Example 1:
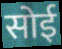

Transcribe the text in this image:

सोई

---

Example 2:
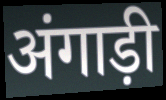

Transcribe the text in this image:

अंगाड़ी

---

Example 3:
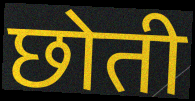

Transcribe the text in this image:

छोती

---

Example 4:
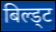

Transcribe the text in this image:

बिल्ड्ट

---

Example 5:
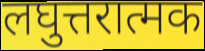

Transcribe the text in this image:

लघुत्तरात्मक